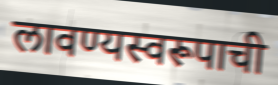
लावण्यस्वरूपाची